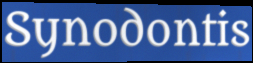
Synodontis